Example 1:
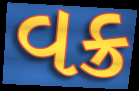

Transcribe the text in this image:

વક્ર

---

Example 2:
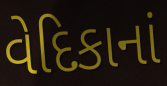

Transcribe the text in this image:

વેદિકાનાં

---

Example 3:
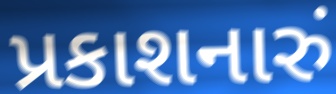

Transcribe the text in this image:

પ્રકાશનારું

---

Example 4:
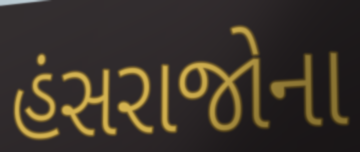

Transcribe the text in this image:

હંસરાજોના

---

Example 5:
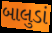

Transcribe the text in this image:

બાલુડાં